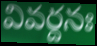
వివర్దనః